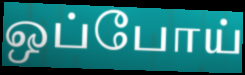
ஒப்போய்